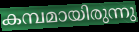
കമ്പമായിരുന്നു